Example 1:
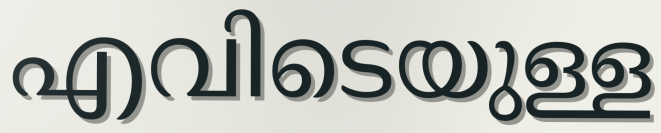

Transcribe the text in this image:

എവിടെയുള്ള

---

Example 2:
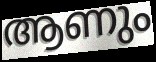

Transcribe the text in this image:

ആണും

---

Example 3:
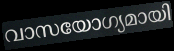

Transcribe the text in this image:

വാസയോഗ്യമായി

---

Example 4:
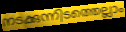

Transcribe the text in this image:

നടക്കുന്നിടത്തെല്ലാം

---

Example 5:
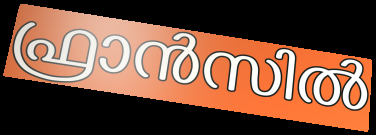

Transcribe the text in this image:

ഫ്രാൻസിൽ